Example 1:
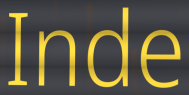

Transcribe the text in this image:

Inde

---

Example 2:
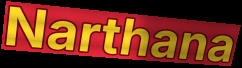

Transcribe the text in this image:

Narthana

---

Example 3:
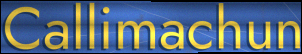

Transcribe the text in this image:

Callimachun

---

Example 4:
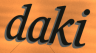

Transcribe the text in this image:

daki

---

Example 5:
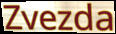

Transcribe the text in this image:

Zvezda